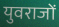
युवराजों